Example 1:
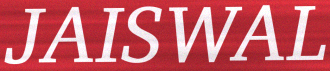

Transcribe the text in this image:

JAISWAL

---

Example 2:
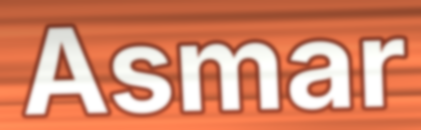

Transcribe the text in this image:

Asmar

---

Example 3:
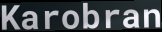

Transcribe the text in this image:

Karobran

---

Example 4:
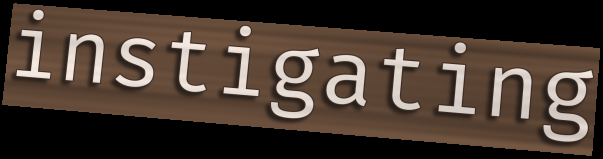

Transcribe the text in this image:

instigating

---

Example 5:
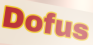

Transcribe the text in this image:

Dofus